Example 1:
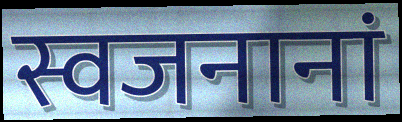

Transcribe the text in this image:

स्वजनानां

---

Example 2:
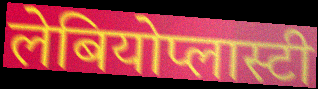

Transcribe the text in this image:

लेबियोप्लास्टी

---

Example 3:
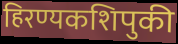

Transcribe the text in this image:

हिरण्यकशिपुकी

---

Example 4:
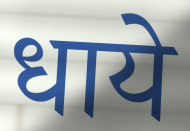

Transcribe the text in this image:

धाये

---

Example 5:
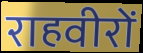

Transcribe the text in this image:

राहवीरों